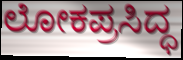
ಲೋಕಪ್ರಸಿದ್ಧ